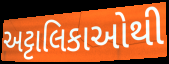
અટ્ટાલિકાઓથી